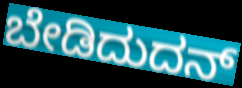
ಬೇಡಿದುದನ್